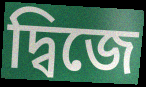
দ্বিজে